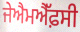
ਜੇਐਮਐੱਫ਼ਸੀ